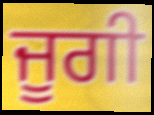
ਜੂਗੀ